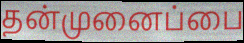
தன்முனைப்பை